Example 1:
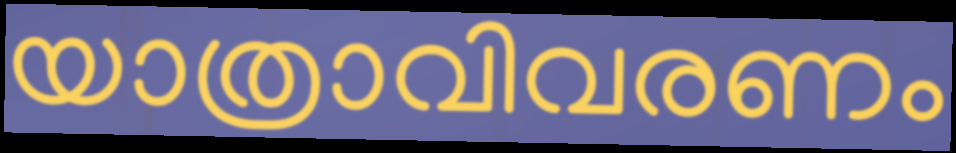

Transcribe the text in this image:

യാത്രാവിവരണം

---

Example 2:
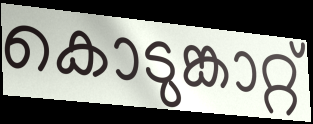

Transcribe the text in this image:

കൊടുങ്കാറ്റ്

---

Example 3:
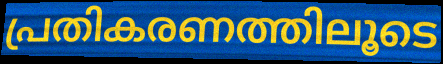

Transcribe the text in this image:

പ്രതികരണത്തിലൂടെ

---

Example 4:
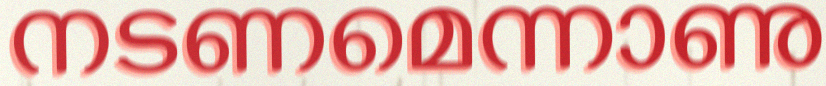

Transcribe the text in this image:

നടണമെന്നാണു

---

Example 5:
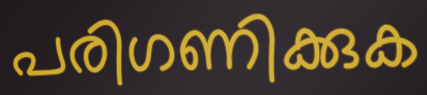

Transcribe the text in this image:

പരിഗണിക്കുക